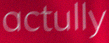
actully